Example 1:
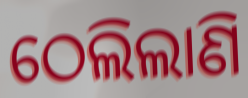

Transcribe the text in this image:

ଠେଲିଲାଣି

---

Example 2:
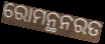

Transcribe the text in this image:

ରୋମନ୍ଥନରତ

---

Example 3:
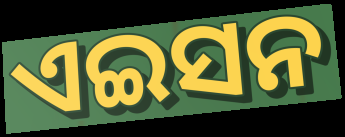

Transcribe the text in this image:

ଏଇସନ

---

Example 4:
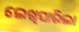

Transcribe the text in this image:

ଲେଖିସାରିଲା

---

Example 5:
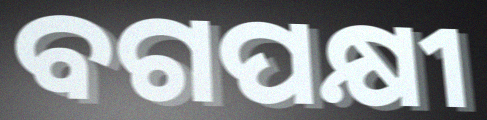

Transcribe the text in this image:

ବଗପକ୍ଷୀ